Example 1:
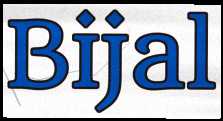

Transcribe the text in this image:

Bijal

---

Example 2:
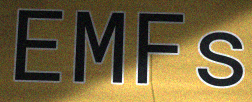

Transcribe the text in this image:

EMFs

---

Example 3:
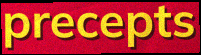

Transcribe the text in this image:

precepts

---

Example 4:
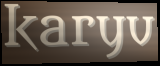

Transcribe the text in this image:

karyu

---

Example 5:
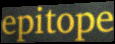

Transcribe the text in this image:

epitope